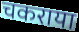
चकराया